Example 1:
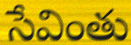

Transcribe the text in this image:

సేవింతు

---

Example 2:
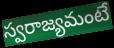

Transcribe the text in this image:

స్వరాజ్యమంటే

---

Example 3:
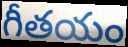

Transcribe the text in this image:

గీతయం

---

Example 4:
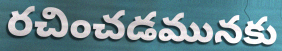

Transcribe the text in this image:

రచించడమునకు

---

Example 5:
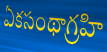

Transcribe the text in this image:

ఏకసంథాగ్రహి